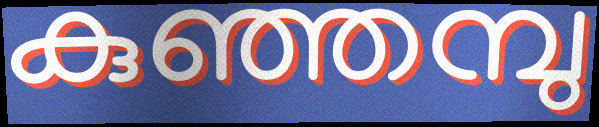
കുഞ്ഞമ്പു